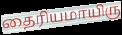
தைரியமாயிரு